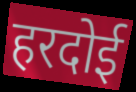
हरदोई